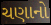
ચણાનો